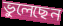
ভুলেছেন